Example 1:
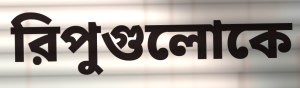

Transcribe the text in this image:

রিপুগুলোকে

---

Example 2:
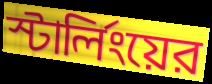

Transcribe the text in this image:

স্টার্লিংয়ের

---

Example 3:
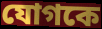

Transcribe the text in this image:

যোগকে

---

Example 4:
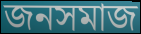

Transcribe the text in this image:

জনসমাজ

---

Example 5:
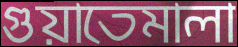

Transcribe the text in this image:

গুয়াতেমালা